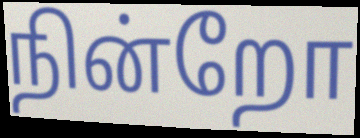
நின்றோ